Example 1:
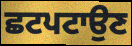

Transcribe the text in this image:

ਛਟਪਟਾਉਣ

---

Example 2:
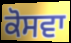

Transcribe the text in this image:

ਕੋਸਵਾ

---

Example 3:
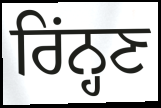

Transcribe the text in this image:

ਰਿਂਨ੍ਹਣ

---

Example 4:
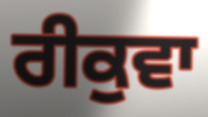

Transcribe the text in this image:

ਰੀਕੁਵਾ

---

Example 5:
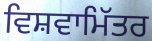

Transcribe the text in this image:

ਵਿਸ਼ਵਾਮਿੱਤਰ